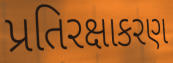
પ્રતિરક્ષાકરણ